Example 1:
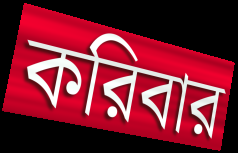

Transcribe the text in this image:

করিবার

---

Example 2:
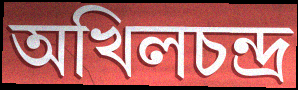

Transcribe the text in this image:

অখিলচন্দ্র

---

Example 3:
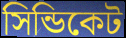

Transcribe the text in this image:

সিন্ডিকেট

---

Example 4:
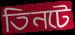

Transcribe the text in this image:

তিনটে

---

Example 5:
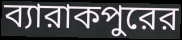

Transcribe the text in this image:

ব্যারাকপুরের